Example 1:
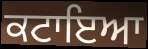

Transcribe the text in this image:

ਕਟਾਇਆ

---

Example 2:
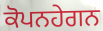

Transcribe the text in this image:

ਕੋਪਨਹੇਗਨ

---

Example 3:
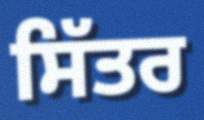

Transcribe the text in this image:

ਸਿੱਤਰ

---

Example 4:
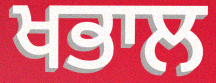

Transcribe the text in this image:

ਖਭਾਲ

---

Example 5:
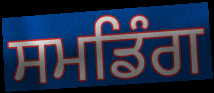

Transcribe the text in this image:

ਸਮਡਿੰਗ